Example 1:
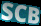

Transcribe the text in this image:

SCB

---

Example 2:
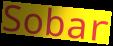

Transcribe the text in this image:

Sobar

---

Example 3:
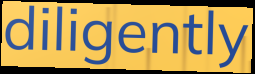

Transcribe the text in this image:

diligently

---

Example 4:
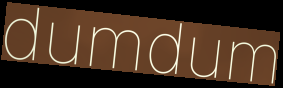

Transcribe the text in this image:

dumdum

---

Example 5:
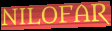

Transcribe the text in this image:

NILOFAR